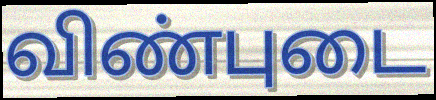
விண்புடை